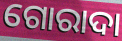
ଗୋରାଦା